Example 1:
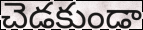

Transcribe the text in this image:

చెడకుండా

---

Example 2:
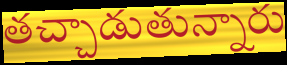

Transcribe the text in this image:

తచ్చాడుతున్నారు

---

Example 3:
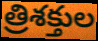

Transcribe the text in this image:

త్రిశక్తుల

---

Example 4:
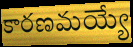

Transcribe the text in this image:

కారణమయ్యే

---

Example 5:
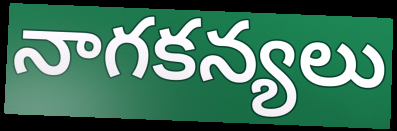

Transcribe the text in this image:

నాగకన్యలు